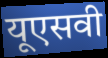
यूएसवी